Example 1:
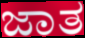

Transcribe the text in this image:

ಜಾತ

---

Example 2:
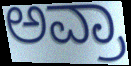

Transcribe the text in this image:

ಅವ್ರಾ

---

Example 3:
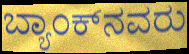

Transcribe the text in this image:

ಬ್ಯಾಂಕ್‌ನವರು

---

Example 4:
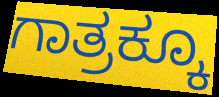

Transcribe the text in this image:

ಗಾತ್ರಕ್ಕೂ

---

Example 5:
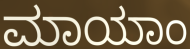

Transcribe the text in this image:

ಮಾಯಾಂ